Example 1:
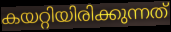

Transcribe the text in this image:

കയറ്റിയിരിക്കുന്നത്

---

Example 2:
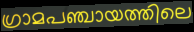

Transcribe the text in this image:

ഗ്രാമപഞ്ചായത്തിലെ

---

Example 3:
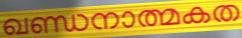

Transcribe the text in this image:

ഖണ്ഡനാത്മകത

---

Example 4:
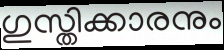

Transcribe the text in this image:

ഗുസ്തിക്കാരനും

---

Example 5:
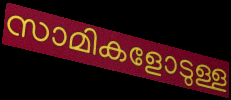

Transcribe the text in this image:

സാമികളോടുള്ള